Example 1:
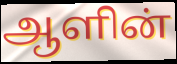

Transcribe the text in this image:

ஆளின்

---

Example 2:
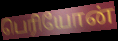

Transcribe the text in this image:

பெரியோன்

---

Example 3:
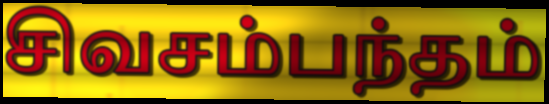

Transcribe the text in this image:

சிவசம்பந்தம்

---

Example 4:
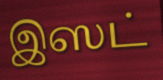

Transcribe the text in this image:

இஸட்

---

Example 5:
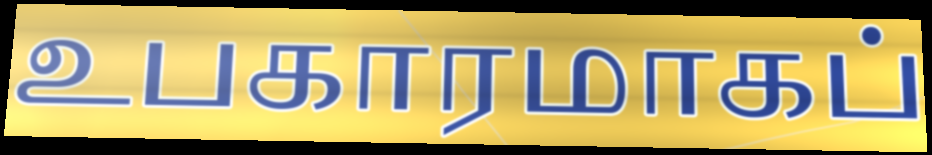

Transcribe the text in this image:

உபகாரமாகப்